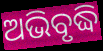
ଅଭିବୃଦ୍ଧି